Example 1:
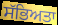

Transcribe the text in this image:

ਸੱਭਿਅਤਾ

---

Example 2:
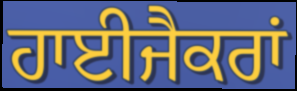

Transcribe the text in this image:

ਹਾਈਜੈਕਰਾਂ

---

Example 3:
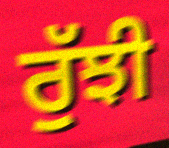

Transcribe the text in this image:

ਰੁੱਝੀ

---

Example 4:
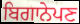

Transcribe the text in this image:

ਬਿਗਾਨੇਪਣ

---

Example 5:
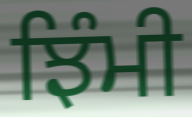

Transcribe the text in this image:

ਝਿੰਮੀ